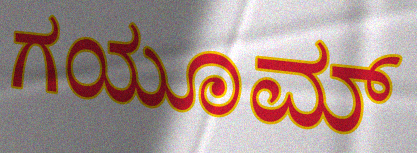
ಗಯೂಮ್